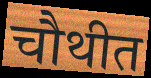
चौथीत